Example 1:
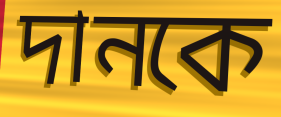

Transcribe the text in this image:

দানকে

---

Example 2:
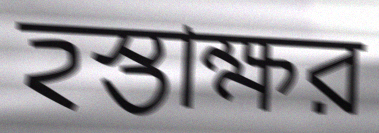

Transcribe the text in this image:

হস্তাক্ষর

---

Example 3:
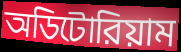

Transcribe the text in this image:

অডিটোরিয়াম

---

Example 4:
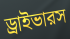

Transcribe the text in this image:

ড্রাইভারস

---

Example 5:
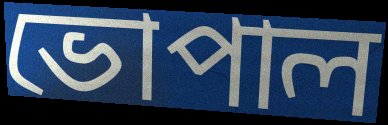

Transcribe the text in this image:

ভোপাল